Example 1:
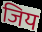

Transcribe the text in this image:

जिय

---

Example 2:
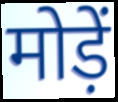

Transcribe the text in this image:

मोड़ें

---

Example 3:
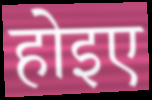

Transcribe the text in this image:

होइए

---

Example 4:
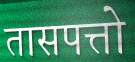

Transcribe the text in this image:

तासपत्तो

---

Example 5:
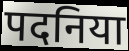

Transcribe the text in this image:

पदनिया